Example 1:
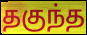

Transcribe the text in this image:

தகுந்த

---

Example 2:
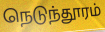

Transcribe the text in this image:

நெடுந்தூரம்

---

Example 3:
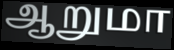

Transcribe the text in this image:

ஆறுமா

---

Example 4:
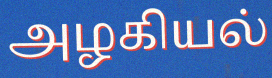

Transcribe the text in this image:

அழகியல்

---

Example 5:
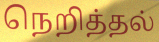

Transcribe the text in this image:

நெறித்தல்